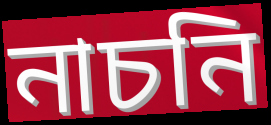
নাচনি